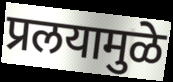
प्रलयामुळे